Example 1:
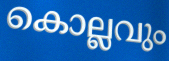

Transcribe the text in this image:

കൊല്ലവും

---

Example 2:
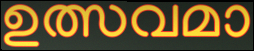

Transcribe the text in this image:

ഉത്സവമാ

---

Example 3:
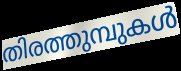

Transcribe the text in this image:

തിരത്തുമ്പുകൾ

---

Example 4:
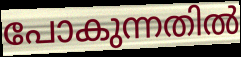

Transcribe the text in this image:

പോകുന്നതിൽ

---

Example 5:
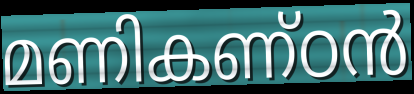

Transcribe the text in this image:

മണികണ്ഠൻ